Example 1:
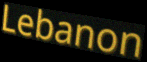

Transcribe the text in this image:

Lebanon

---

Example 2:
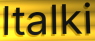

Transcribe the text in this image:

Italki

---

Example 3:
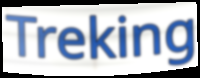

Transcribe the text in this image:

Treking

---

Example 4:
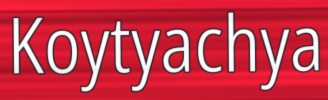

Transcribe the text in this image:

Koytyachya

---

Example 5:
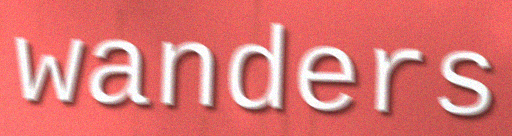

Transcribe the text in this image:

wanders